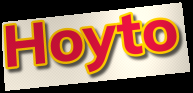
Hoyto